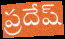
ప్రదేష్